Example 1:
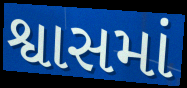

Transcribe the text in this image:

શ્વાસમાં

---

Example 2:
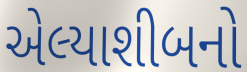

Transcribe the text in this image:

એલ્યાશીબનો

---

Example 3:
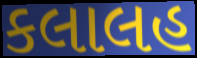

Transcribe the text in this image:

કલાલહ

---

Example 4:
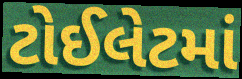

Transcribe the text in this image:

ટોઈલેટમાં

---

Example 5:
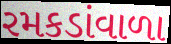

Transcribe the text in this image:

રમકડાંવાળા